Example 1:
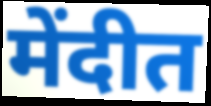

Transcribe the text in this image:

मेंदीत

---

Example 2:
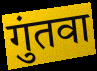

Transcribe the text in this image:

गुंतवा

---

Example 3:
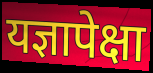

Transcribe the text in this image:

यज्ञापेक्षा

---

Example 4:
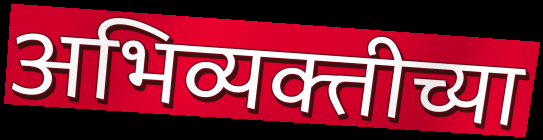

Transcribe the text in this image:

अभिव्यक्तीच्या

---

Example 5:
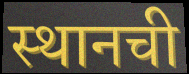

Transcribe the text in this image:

स्थानची